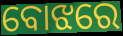
ବୋଝରେ